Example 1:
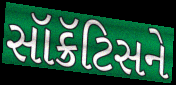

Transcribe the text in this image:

સૉક્રૅટિસને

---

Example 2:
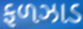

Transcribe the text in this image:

ફળઝાડ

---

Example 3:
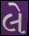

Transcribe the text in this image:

લે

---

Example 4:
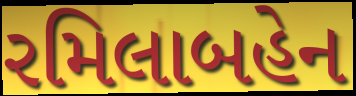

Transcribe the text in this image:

રમિલાબહેન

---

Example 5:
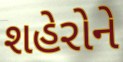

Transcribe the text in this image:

શહેરોને